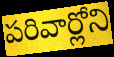
పరివార్లోని